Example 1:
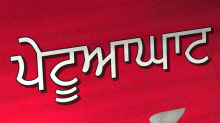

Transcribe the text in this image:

ਪੇਟੂਆਘਾਟ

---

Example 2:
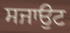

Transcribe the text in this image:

ਸਜਾਉਟ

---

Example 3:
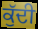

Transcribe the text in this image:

ਕੁੱਦੀ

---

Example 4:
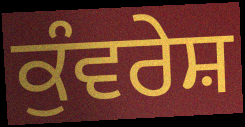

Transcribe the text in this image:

ਕੁੰਵਰੇਸ਼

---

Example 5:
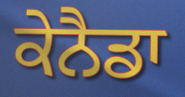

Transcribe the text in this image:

ਕੇਨੈਡਾ